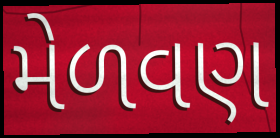
મેળવણ